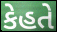
કેહતે